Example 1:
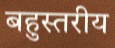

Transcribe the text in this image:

बहुस्तरीय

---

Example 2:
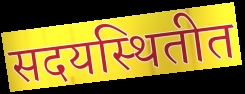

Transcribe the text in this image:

सदयस्थितीत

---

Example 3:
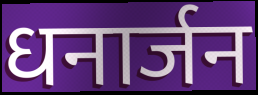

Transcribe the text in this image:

धनार्जन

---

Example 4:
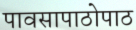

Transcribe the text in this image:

पावसापाठोपाठ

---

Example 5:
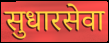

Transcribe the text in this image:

सुधारसेवा